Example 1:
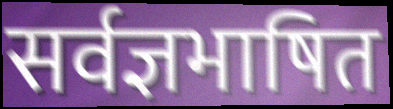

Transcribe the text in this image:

सर्वज्ञभाषित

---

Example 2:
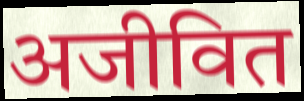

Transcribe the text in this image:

अजीवित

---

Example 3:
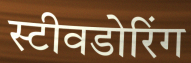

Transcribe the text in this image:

स्टीवडोरिंग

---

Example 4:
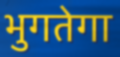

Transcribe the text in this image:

भुगतेगा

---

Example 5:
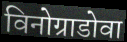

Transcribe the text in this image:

विनोग्राडोवा